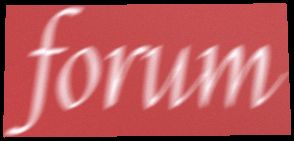
forum